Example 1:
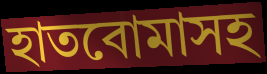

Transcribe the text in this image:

হাতবোমাসহ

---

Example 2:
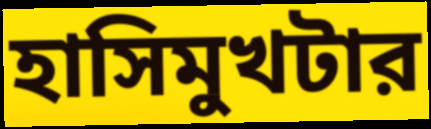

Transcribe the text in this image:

হাসিমুখটার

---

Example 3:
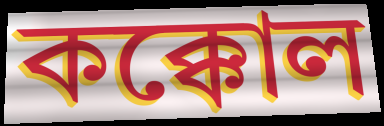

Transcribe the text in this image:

কক্কোল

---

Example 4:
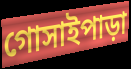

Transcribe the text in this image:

গোসাইপাড়া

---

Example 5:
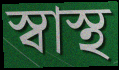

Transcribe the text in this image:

স্বাস্থ